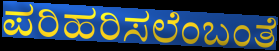
ಪರಿಹರಿಸಲೆಂಬಂತೆ